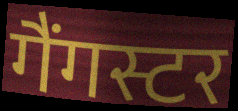
गैंगस्टर